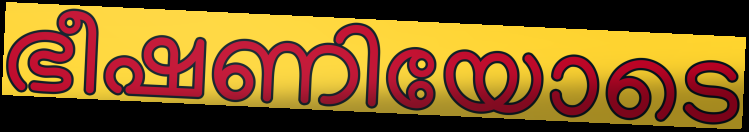
ഭീഷണിയോടെ